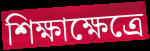
শিক্ষাক্ষেত্রে